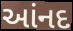
આંનદ